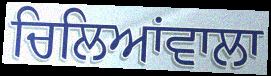
ਚਿਲਿਆਂਵਾਲਾ